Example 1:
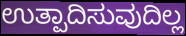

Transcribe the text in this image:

ಉತ್ಪಾದಿಸುವುದಿಲ್ಲ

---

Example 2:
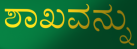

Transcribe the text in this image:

ಶಾಖವನ್ನು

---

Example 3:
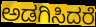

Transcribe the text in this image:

ಅಡಗಿಸಿದರೆ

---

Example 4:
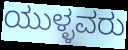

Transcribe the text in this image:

ಯುಳ್ಳವರು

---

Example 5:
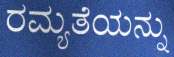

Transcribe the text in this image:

ರಮ್ಯತೆಯನ್ನು